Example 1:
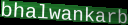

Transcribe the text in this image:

bhalwankarb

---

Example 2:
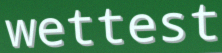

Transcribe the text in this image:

wettest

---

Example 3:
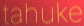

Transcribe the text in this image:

tahuke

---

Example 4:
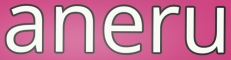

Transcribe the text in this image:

aneru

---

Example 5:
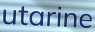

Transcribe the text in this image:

utarine